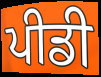
ਪੀਡੀ